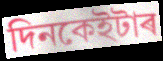
দিনকেইটাৰ